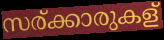
സര്ക്കാരുകള്